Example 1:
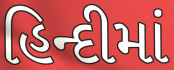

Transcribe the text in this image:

હિન્દીમાં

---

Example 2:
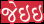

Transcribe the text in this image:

જેઇઇ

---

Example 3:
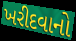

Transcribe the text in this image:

ખરીદવાનો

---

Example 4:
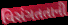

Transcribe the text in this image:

વિસંગતતાની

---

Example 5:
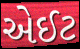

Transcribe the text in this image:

એઈટ